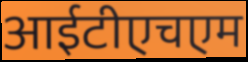
आईटीएचएम